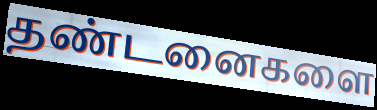
தண்டனைகளை